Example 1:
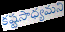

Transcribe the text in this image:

కష్టసాధ్యమని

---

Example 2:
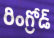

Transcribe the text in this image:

రింగ్రోడ్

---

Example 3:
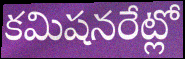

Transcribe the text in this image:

కమిషనరేట్లో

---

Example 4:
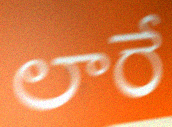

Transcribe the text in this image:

లారే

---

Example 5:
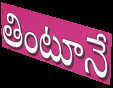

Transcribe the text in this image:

తింటూనే